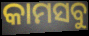
କାମସବୁ